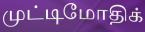
முட்டிமோதிக்